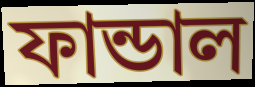
ফান্ডাল